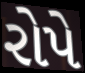
રોપે